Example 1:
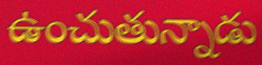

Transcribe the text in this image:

ఉంచుతున్నాడు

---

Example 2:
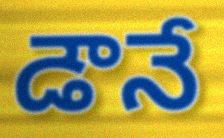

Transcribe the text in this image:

డౌనే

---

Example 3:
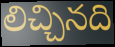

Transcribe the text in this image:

లిచ్చినది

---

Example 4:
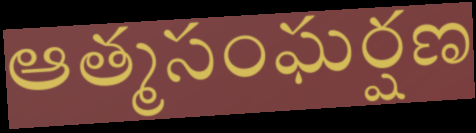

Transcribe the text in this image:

ఆత్మసంఘర్షణ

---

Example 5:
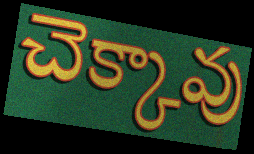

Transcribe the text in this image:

చెక్కావు